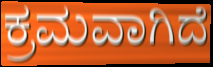
ಕ್ರಮವಾಗಿದೆ